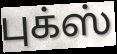
புக்ஸ்